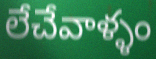
లేచేవాళ్ళం